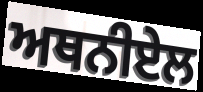
ਅਥਨੀਏਲ